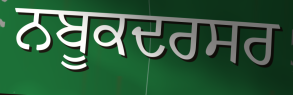
ਨਬੂਕਦਰਸਰ